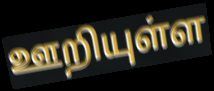
ஊறியுள்ள